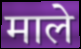
माले